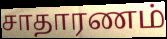
சாதாரணம்